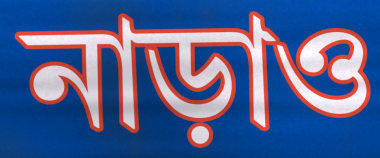
নাড়াও